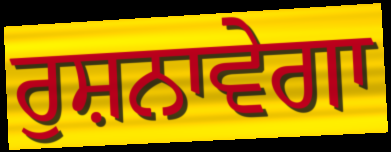
ਰੁਸ਼ਨਾਵੇਗਾ